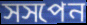
সসপেন